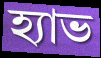
হ্যাভ